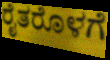
ರೈತರೊಳಗೆ